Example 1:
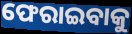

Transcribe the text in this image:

ଫେରାଇବାକୁ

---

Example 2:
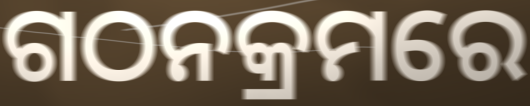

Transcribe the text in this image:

ଗଠନକ୍ରମରେ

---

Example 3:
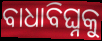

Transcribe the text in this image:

ବାଧାବିଘ୍ନକୁ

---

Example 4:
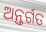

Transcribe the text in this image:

ଅନ୍ତର୍ଗତ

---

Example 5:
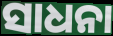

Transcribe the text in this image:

ସାଧନା